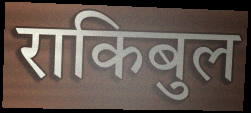
राकिबुल